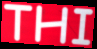
THI